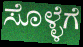
ಸೊಳ್ಳೆಗೆ